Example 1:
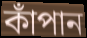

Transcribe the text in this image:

কাঁপান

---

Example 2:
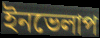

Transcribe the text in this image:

ইনভেলাপ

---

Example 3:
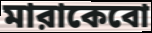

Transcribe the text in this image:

মারাকেবো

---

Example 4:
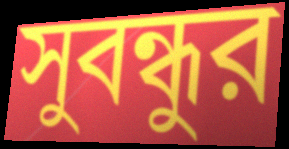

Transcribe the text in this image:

সুবন্ধুর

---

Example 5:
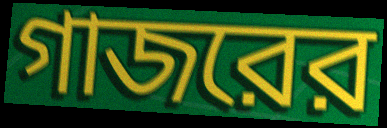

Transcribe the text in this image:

গাজরের